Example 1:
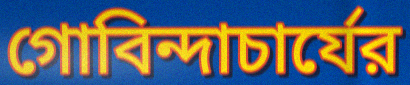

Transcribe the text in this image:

গোবিন্দাচার্যের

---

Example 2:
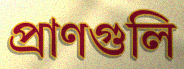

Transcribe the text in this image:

প্রাণগুলি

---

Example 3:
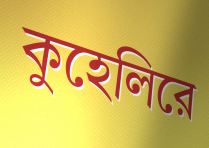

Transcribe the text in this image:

কুহেলিরে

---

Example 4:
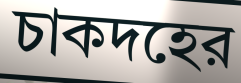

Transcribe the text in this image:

চাকদহের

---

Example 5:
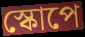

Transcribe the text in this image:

স্কোপে